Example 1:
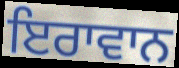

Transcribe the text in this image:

ਇਰਾਵਾਨ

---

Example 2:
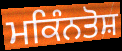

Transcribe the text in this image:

ਮਕਿੰਨਤੋਸ਼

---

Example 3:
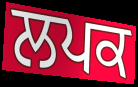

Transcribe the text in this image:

ਲਪਕ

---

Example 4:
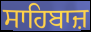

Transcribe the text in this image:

ਸਾਹਿਬਾਜ਼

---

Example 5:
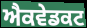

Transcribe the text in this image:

ਐਕਵੇਡਕਟ